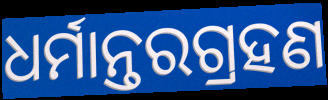
ଧର୍ମାନ୍ତରଗ୍ରହଣ